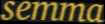
semma